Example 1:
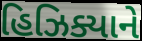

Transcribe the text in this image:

હિઝિક્યાને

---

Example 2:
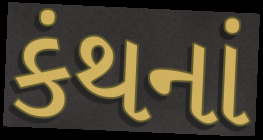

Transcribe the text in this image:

કંથનાં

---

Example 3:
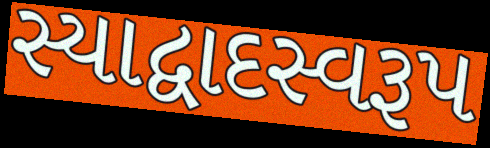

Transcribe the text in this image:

સ્યાદ્વાદસ્વરૂપ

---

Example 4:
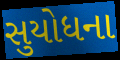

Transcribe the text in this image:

સુયોધના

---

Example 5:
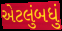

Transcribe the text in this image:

એટલુંબધું